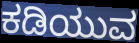
ಕಡಿಯುವ